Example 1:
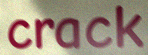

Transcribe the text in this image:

crack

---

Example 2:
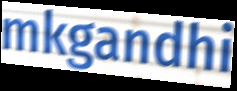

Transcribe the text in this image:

mkgandhi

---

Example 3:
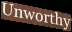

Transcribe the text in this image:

Unworthy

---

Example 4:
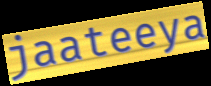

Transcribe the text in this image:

jaateeya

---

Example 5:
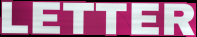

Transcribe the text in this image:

LETTER